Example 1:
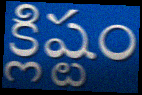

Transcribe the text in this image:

క్లిష్టం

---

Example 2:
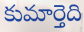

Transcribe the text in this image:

కుమార్తెది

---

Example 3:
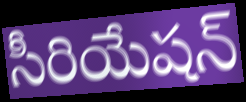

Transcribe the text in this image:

సీరియేషన్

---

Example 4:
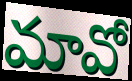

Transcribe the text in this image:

మావో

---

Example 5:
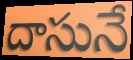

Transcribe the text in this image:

దాసునే